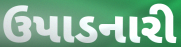
ઉપાડનારી